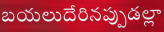
బయలుదేరినప్పుడల్లా